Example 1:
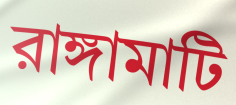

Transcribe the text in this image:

রাঙ্গামাটি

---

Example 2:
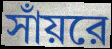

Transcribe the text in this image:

সাঁয়রে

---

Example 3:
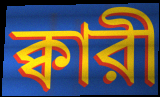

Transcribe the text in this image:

ক্বারী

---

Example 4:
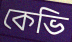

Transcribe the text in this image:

কেভি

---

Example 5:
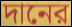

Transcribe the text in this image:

দানের